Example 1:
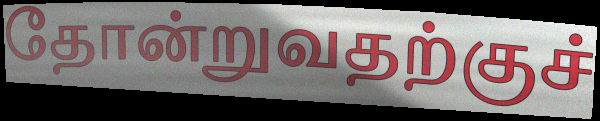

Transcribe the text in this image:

தோன்றுவதற்குச்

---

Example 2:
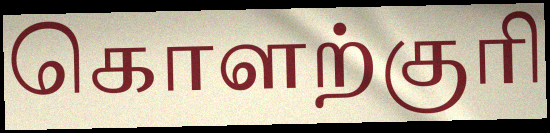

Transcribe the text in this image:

கொளற்குரி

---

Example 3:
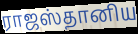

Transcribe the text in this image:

ராஜஸ்தானிய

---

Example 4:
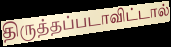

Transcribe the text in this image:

திருத்தப்படாவிட்டால்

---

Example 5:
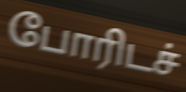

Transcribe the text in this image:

போரிடச்